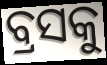
ବ୍ରସକୁ